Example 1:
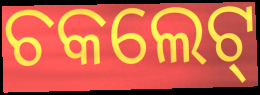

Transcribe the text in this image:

ଚକଲେଟ୍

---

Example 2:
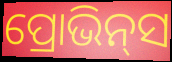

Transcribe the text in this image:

ପ୍ରୋଭିନ୍‌ସ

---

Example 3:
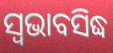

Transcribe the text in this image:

ସ୍ଵଭାବସିଦ୍ଧ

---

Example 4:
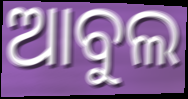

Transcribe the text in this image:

ଆବୁଲ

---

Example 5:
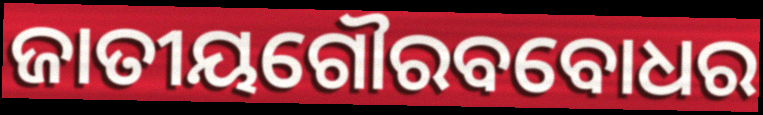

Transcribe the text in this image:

ଜାତୀୟଗୌରବବୋଧର